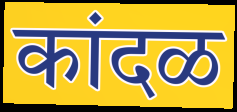
कांदळ